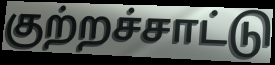
குற்றச்சாட்டு